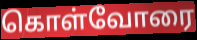
கொள்வோரை